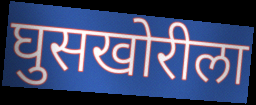
घुसखोरीला